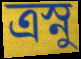
ত্রস্নু